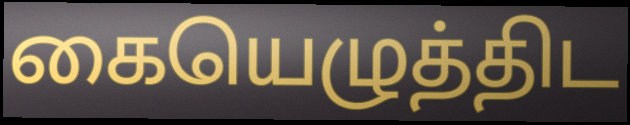
கையெழுத்திட